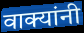
वाक्यांनी